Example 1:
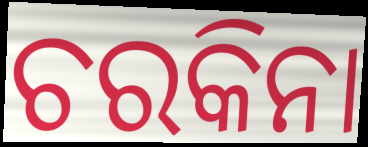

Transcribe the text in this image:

ଚରକିନା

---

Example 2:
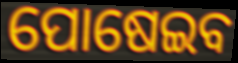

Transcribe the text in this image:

ପୋଷେଇବ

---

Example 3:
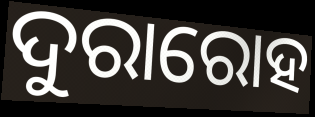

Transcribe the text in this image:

ଦୁରାରୋହ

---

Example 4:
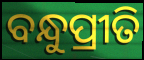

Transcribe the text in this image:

ବନ୍ଧୁପ୍ରୀତି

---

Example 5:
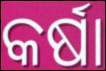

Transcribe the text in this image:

କର୍ଷା